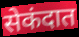
सेकंदात